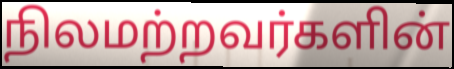
நிலமற்றவர்களின்